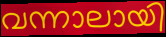
വന്നാലായി